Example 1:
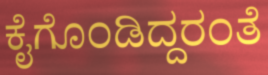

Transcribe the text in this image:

ಕೈಗೊಂಡಿದ್ದರಂತೆ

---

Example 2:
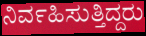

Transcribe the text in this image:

ನಿರ್ವಹಿಸುತ್ತಿದ್ದರು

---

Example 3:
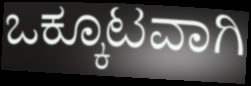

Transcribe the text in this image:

ಒಕ್ಕೂಟವಾಗಿ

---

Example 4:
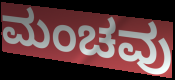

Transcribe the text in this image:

ಮಂಚವು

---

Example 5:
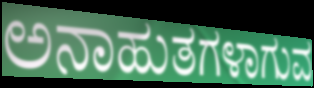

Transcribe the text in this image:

ಅನಾಹುತಗಳಾಗುವ